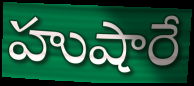
హుషారే